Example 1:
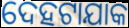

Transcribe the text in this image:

ଦେହଟାଯାକ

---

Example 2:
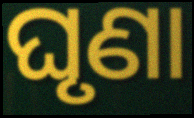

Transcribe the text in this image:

ଘୃଣା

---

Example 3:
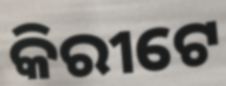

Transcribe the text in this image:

କିରୀଟେ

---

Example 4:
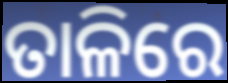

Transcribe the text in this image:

ତାଳିରେ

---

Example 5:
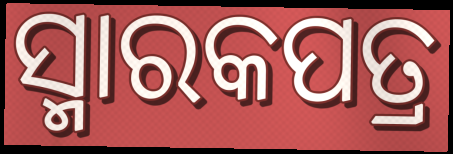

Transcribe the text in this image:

ସ୍ମାରକପତ୍ର